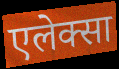
एलेक्सा